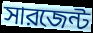
সারজেন্ট